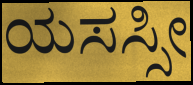
ಯಸಸ್ಸೀ